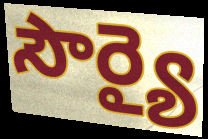
సౌర్యై